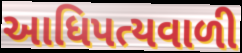
આધિપત્યવાળી